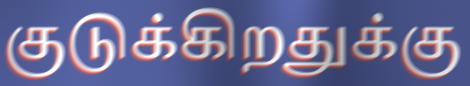
குடுக்கிறதுக்கு